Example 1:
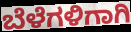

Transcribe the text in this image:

ಬೆಳೆಗಳಿಗಾಗಿ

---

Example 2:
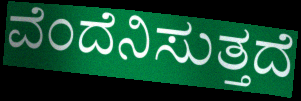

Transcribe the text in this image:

ವೆಂದೆನಿಸುತ್ತದೆ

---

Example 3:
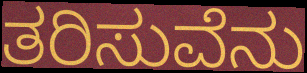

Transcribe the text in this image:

ತರಿಸುವೆನು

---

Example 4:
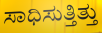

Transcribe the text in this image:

ಸಾಧಿಸುತ್ತಿತ್ತು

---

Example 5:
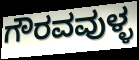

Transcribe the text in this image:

ಗೌರವವುಳ್ಳ